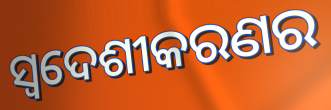
ସ୍ୱଦେଶୀକରଣର